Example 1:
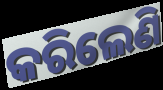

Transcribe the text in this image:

କରିଲେଣି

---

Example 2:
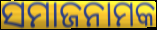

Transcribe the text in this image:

ସମାଜନାମକ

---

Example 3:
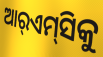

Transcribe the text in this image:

ଆର୍‌ଏମ୍‌ସିକୁ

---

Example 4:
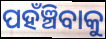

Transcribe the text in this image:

ପହଁଞ୍ଚିବାକୁ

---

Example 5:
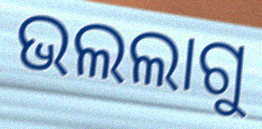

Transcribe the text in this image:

ଭଲଲାଗୁ